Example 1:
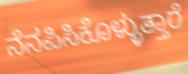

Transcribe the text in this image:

ನೆನಪಿಸಿಕೊಳ್ಳುತ್ತಾರೆ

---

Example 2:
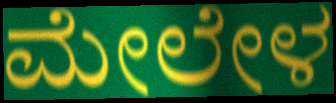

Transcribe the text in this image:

ಮೇಲೇಳ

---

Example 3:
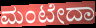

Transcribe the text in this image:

ಮಂಟೇದಾ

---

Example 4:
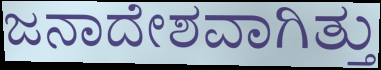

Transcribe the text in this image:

ಜನಾದೇಶವಾಗಿತ್ತು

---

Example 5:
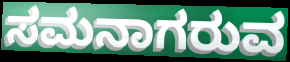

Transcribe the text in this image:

ಸಮನಾಗರುವ